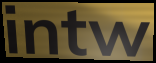
intw